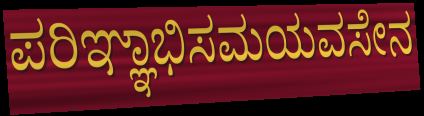
ಪರಿಞ್ಞಾಭಿಸಮಯವಸೇನ